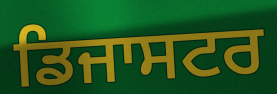
ਡਿਜਾਸਟਰ